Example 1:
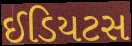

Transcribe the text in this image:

ઈડિયટસ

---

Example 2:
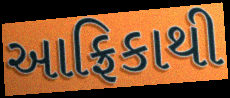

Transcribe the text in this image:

આફ્રિકાથી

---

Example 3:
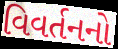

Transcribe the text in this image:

વિવર્તનનો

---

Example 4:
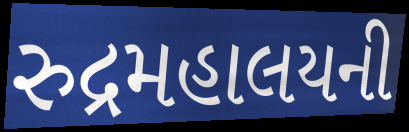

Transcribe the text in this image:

રુદ્રમહાલયની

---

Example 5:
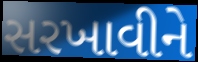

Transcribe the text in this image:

સરખાવીને